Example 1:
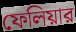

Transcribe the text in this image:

ফেলিয়ার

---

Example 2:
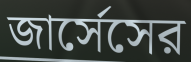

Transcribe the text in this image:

জার্সেসের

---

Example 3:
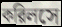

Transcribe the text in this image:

করিলসে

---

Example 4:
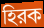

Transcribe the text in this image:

হিরক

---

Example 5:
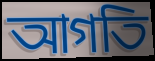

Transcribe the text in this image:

আগতি